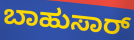
ಬಾಹುಸಾರ್